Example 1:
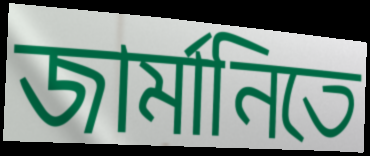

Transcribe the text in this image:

জার্মানিতে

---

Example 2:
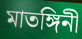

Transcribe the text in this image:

মাতঙ্গিনী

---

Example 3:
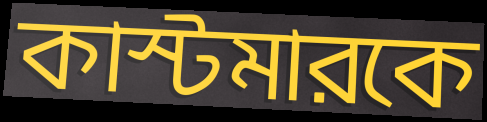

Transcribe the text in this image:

কাস্টমারকে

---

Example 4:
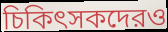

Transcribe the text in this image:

চিকিৎসকদেরও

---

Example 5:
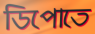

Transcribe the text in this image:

ডিপোতে